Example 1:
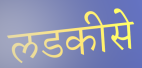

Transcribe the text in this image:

लडकीसे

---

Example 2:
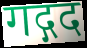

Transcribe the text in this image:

गद्गद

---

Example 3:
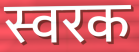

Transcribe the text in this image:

स्वरक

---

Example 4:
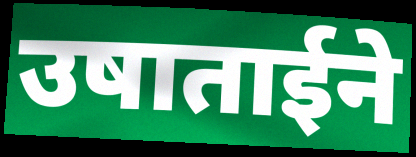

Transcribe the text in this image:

उषाताईने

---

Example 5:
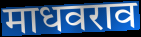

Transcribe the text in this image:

माधवराव